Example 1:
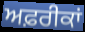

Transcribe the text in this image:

ਅਫ਼ਰੀਕਾਂ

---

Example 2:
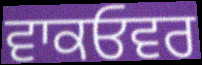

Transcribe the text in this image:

ਵਾਕਓਵਰ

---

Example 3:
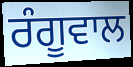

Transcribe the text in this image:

ਰੰਗੂਵਾਲ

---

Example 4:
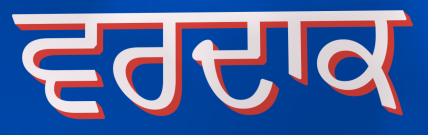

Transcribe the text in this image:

ਵਰਦਾਕ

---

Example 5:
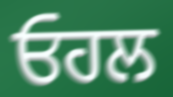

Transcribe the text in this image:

ਓਹਲ